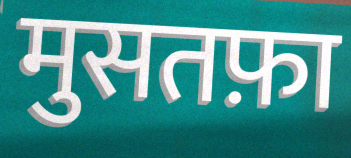
मुसतफ़ा